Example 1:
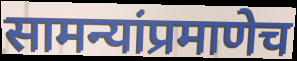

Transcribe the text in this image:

सामन्यांप्रमाणेच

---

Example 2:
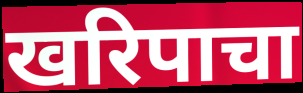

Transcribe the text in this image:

खरिपाचा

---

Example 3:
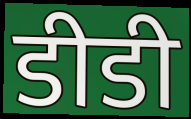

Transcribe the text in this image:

डीडी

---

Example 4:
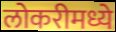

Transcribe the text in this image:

लोकरीमध्ये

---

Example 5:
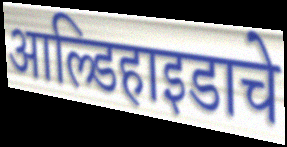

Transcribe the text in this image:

आल्डिहाइडाचे